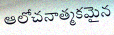
ఆలోచనాత్మకమైన